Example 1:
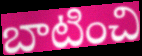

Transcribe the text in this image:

బాటించి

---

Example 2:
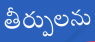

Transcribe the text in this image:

తీర్పులను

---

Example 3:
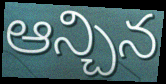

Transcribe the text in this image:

ఆన్చిన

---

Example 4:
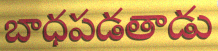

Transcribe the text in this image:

బాధపడతాడు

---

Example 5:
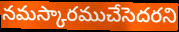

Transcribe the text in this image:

నమస్కారముచేసెదరని